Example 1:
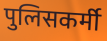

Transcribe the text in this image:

पुलिसकर्मी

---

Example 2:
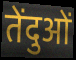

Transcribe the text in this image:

तेंदुओं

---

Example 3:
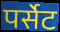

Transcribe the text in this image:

पर्सेट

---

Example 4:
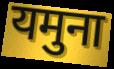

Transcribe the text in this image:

यमुना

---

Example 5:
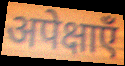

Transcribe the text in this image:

अपेक्षाएँ